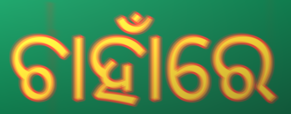
ଚାହାଁରେ